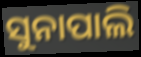
ସୁନାପାଲି